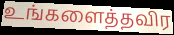
உங்களைத்தவிர